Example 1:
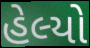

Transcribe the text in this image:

હેલ્યો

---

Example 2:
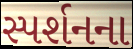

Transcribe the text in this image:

સ્પર્શનના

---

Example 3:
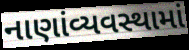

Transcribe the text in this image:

નાણાંવ્યવસ્થામાં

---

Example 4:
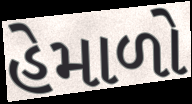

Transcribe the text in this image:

હેમાળો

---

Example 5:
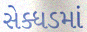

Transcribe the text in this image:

સેક્ધડમાં